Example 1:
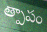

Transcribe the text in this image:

త్పాపం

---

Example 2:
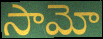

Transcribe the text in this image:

సామో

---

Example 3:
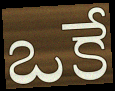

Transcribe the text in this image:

ఒకే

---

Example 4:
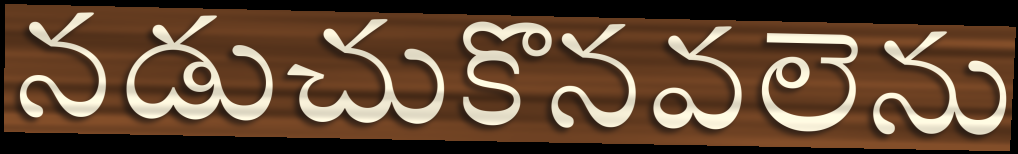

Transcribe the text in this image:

నడుచుకొనవలెను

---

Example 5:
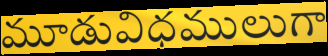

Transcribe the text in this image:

మూడువిధములుగా